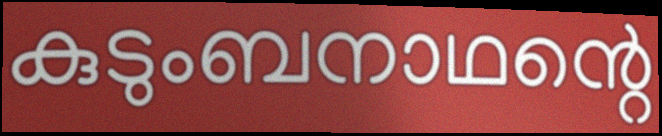
കുടുംബനാഥന്റെ